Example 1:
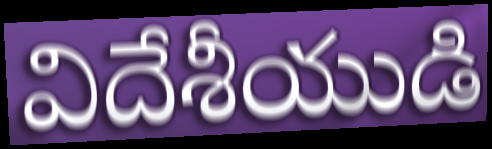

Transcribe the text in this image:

విదేశీయుడి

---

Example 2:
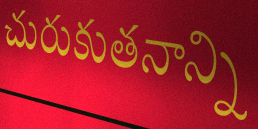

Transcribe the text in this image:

చురుకుతనాన్ని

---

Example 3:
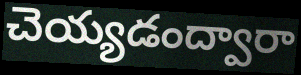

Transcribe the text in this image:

చెయ్యడంద్వారా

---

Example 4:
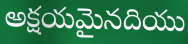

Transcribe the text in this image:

అక్షయమైనదియు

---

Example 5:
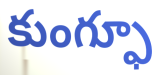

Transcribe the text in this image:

కుంగ్ఫూ